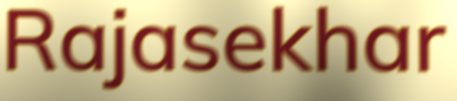
Rajasekhar